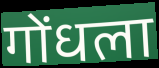
गोंधला